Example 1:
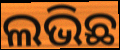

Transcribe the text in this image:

ଲଭିଛ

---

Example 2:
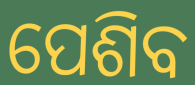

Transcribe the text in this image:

ପେଶିବ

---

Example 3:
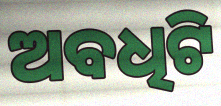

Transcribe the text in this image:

ଅବଧିଟି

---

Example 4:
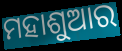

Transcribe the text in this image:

ମହାଶୁଆର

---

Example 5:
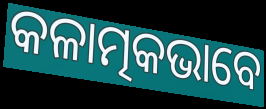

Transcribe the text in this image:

କଳାତ୍ମକଭାବେ